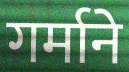
गर्माने